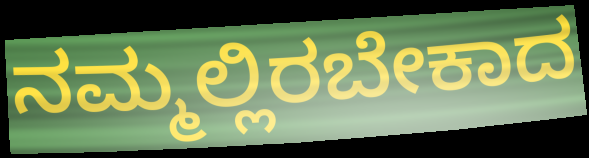
ನಮ್ಮಲ್ಲಿರಬೇಕಾದ